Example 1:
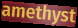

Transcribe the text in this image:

amethyst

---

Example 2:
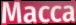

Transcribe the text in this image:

Macca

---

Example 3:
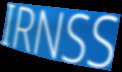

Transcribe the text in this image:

IRNSS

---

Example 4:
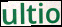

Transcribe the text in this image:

ultio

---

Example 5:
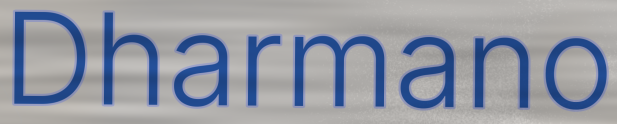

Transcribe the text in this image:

Dharmano